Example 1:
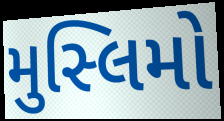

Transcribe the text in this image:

મુસ્લિમો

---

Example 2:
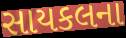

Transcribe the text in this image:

સાયકલના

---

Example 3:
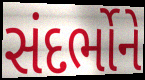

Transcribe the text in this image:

સંદર્ભોને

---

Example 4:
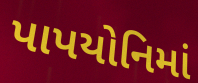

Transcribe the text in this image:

પાપયોનિમાં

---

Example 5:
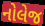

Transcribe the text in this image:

નોલેજ